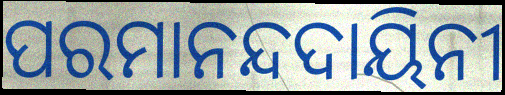
ପରମାନନ୍ଦଦାୟିନୀ